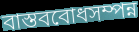
বাস্তববোধসম্পন্ন